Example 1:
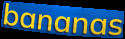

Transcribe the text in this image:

bananas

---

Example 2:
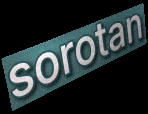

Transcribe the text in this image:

sorotan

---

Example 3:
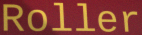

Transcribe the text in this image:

Roller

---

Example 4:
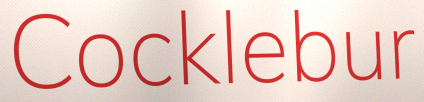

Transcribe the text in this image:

Cocklebur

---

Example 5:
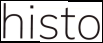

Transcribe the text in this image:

histo